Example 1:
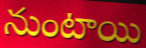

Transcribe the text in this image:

నుంటాయి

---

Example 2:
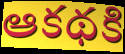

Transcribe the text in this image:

ఆకథకి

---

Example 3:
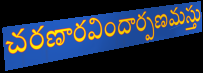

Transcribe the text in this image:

చరణారవిందార్పణమస్తు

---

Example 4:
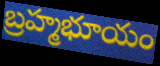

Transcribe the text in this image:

బ్రహ్మభూయం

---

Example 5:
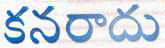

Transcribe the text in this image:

కనరాదు